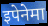
इपेनेमा